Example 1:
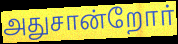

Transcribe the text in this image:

அதுசான்றோர்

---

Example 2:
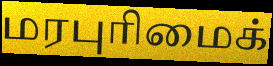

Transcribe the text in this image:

மரபுரிமைக்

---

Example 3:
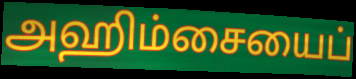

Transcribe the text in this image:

அஹிம்சையைப்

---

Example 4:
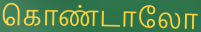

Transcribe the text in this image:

கொண்டாலோ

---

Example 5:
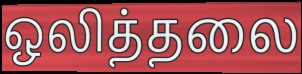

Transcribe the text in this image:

ஒலித்தலை